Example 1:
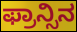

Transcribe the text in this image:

ಫ್ರಾನ್ಸಿನ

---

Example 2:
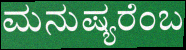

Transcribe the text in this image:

ಮನುಷ್ಯರೆಂಬ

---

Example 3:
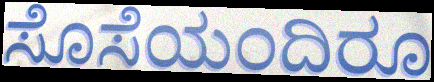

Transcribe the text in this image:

ಸೊಸೆಯಂದಿರೂ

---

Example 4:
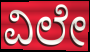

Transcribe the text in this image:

ವಿಲೇ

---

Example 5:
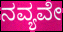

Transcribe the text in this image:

ನವ್ಯವೇ